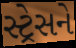
સ્ટ્રેસને